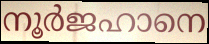
നൂർജഹാനെ